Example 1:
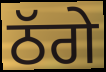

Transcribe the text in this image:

ਠੱਗੇ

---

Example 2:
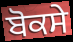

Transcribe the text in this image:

ਬੋਕਸੇ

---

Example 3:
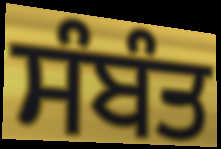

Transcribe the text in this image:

ਸੰਬੰਤ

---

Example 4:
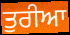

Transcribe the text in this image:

ਤੁਰੀਆ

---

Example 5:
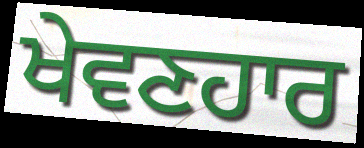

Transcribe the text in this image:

ਖੇਵਣਹਾਰ